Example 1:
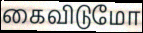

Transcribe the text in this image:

கைவிடுமோ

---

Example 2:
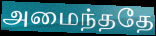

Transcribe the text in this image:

அமைந்ததே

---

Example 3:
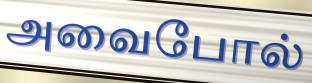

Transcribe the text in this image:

அவைபோல்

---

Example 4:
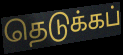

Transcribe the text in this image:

தெடுக்கப்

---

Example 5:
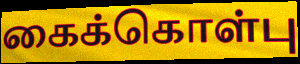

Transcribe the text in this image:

கைக்கொள்பு